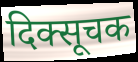
दिक्सूचक